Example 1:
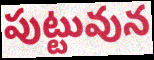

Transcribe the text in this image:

పుట్టువున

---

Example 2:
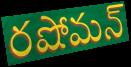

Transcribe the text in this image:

రషోమన్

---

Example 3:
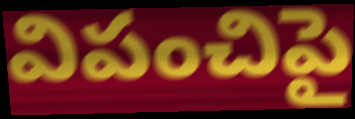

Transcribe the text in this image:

విపంచిపై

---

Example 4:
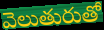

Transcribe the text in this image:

వెలుతురుతో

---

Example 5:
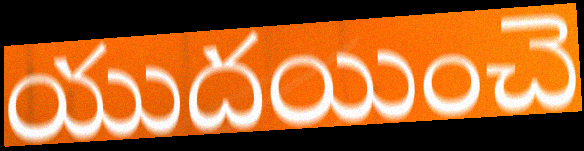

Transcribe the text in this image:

యుదయించె